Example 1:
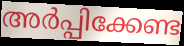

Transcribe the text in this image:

അർപ്പിക്കേണ്ട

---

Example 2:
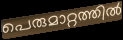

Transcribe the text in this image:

പെരുമാറ്റത്തിൽ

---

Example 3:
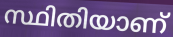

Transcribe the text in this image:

സ്ഥിതിയാണ്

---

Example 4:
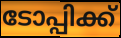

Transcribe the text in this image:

ടോപ്പിക്ക്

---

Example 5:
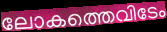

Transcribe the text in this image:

ലോകത്തെവിടേം